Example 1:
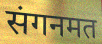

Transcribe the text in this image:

संगनमत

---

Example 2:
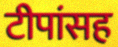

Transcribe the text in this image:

टीपांसह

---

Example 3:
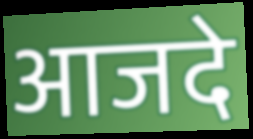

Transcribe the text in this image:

आजदे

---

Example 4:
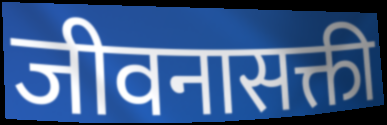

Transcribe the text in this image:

जीवनासक्ती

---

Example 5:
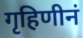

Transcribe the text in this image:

गृहिणीनं